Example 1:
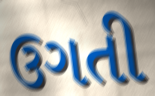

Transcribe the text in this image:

ઉગતી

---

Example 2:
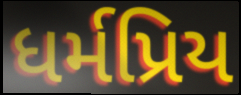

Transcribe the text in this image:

ધર્મપ્રિય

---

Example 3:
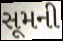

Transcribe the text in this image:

સૂમની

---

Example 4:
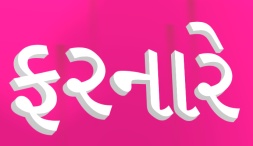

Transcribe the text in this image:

ફરનારે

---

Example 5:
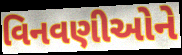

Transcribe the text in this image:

વિનવણીઓને